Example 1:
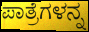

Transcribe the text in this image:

ಪಾತ್ರೆಗಳನ್ನ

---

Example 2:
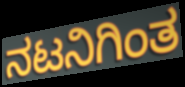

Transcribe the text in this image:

ನಟನಿಗಿಂತ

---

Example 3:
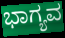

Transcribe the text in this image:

ಭಾಗ್ಯವ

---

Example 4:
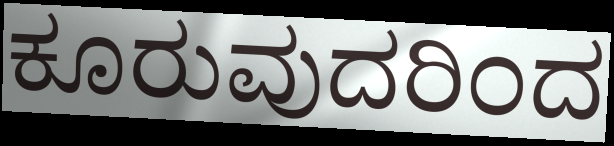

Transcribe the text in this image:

ಕೂರುವುದರಿಂದ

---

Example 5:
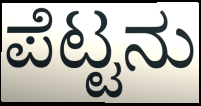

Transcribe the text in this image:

ಪೆಟ್ಟನು